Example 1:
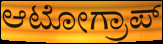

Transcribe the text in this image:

ಆಟೋಗ್ರಾಪ್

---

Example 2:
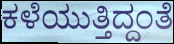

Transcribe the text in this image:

ಕಳೆಯುತ್ತಿದ್ದಂತೆ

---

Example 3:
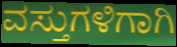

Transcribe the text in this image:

ವಸ್ತುಗಳಿಗಾಗಿ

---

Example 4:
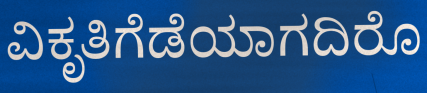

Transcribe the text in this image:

ವಿಕೃತಿಗೆಡೆಯಾಗದಿರೊ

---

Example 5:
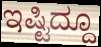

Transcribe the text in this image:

ಇಷ್ಟಿದ್ದೂ